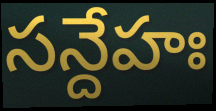
సన్దేహః